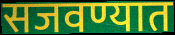
सजवण्यात